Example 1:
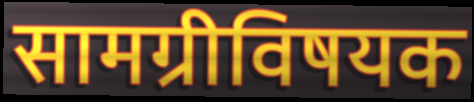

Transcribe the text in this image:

सामग्रीविषयक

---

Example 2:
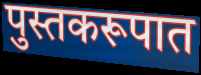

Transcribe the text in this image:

पुस्तकरूपात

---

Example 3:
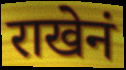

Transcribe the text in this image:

राखेनं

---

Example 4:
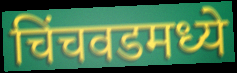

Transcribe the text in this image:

चिंचवडमध्ये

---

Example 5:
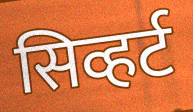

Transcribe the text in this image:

सिव्हर्ट